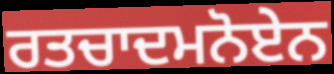
ਰਤਚਾਦਮਨੋਏਨ